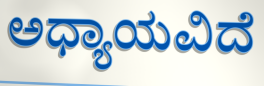
ಅಧ್ಯಾಯವಿದೆ